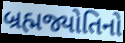
બ્રહ્મજ્યોતિનો